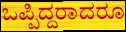
ಒಪ್ಪಿದ್ದರಾದರೂ